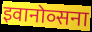
इवानोव्सना